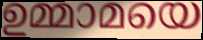
ഉമ്മാമയെ